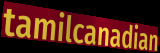
tamilcanadian